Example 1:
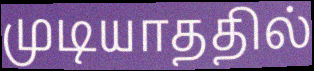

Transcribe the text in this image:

முடியாததில்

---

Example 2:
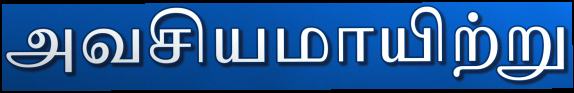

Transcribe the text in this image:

அவசியமாயிற்று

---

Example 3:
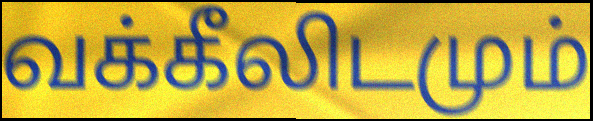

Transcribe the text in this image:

வக்கீலிடமும்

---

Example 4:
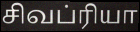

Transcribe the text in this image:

சிவப்ரியா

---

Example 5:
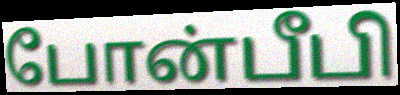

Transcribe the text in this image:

போன்பீபி